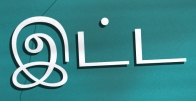
இட்ட